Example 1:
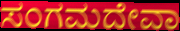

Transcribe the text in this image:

ಸಂಗಮದೇವಾ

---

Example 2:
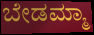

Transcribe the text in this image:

ಬೇಡಮ್ಮಾ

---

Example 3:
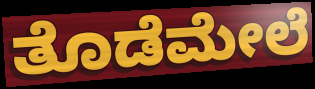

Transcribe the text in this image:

ತೊಡೆಮೇಲೆ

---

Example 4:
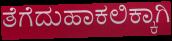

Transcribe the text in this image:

ತೆಗೆದುಹಾಕಲಿಕ್ಕಾಗಿ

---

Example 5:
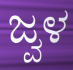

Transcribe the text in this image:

ಜ್ವಳ